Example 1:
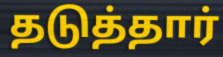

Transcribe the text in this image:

தடுத்தார்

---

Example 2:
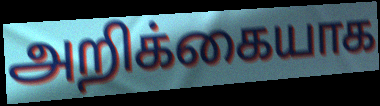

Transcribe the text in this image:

அறிக்கையாக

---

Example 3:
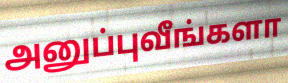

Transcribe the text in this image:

அனுப்புவீங்களா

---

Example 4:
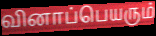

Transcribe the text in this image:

வினாப்பெயரும்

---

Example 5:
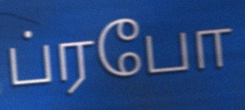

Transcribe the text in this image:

ப்ரபோ